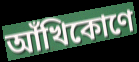
আঁখিকোণে